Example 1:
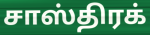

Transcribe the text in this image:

சாஸ்திரக்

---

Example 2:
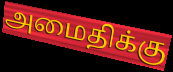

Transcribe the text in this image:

அமைதிக்கு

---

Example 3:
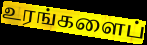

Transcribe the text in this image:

உரங்களைப்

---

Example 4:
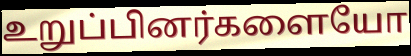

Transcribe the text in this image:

உறுப்பினர்களையோ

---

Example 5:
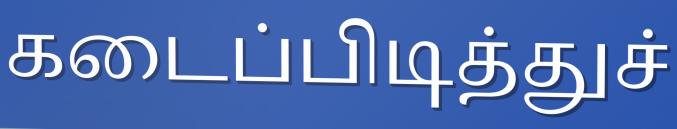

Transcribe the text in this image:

கடைப்பிடித்துச்